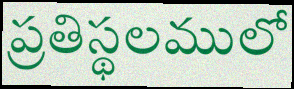
ప్రతిస్థలములో